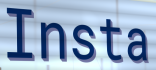
Insta